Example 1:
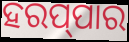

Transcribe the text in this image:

ହରପ୍‌ପାର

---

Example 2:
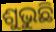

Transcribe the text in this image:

ଶୁଭୁଛି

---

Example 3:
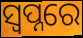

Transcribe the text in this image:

ସ୍ୱପ୍ନରେ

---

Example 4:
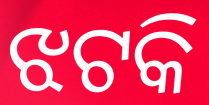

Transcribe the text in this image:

ଝଟକି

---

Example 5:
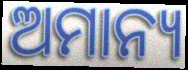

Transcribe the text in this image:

ଅମାନ୍ୟ